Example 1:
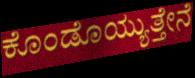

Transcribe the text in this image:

ಕೊಂಡೊಯ್ಯುತ್ತೇನೆ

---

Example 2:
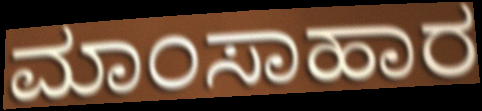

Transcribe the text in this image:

ಮಾಂಸಾಹಾರ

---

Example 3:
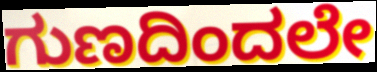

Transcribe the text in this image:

ಗುಣದಿಂದಲೇ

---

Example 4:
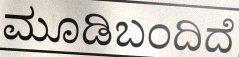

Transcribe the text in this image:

ಮೂಡಿಬಂದಿದೆ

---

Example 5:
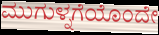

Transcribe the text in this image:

ಮುಗುಳ್ನಗೆಯೊಂದೇ